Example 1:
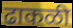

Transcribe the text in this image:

ढाकळी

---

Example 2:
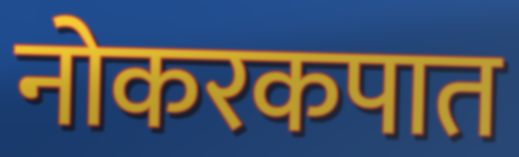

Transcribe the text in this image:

नोकरकपात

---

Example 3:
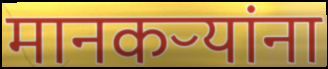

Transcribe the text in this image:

मानकऱ्यांना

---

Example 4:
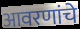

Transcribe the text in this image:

आवरणांचे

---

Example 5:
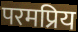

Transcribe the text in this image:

परमप्रिय